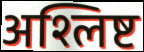
अश्लिष्ट